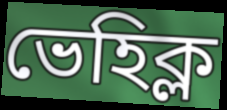
ভেহিক্ল